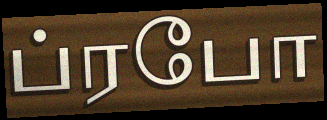
ப்ரபோ